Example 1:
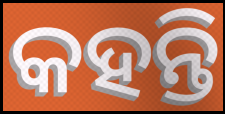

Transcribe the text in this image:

କହନ୍ତି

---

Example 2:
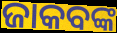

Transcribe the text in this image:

ଜାକବଙ୍କ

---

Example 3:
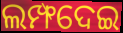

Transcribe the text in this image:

ଲମ୍ଫଦେଇ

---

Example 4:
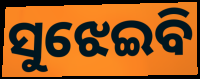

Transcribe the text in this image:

ସୁଝେଇବି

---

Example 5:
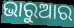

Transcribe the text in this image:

ଭାରୁଆର